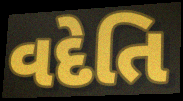
વદેતિ